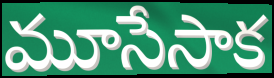
మూసేసాక